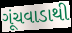
ગૂંચવાડાથી